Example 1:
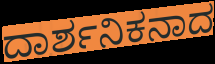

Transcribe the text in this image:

ದಾರ್ಶನಿಕನಾದ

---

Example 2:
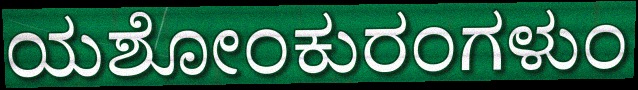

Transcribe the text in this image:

ಯಶೋಂಕುರಂಗಳುಂ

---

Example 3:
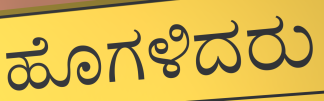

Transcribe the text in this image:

ಹೊಗಳಿದರು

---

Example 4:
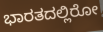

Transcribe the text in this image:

ಭಾರತದಲ್ಲಿರೋ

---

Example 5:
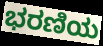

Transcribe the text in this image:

ಭರಣಿಯ